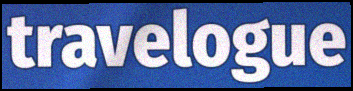
travelogue